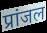
प्रांजल